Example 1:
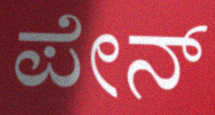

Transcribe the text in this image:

ಪೇನ್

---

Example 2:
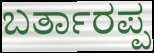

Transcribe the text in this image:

ಬರ್ತಾರಪ್ಪ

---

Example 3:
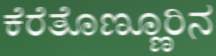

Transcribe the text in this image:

ಕೆರೆತೊಣ್ಣೂರಿನ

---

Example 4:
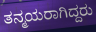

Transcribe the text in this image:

ತನ್ಮಯರಾಗಿದ್ದರು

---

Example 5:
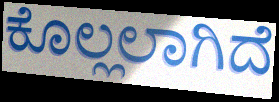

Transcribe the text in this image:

ಕೊಲ್ಲಲಾಗಿದೆ